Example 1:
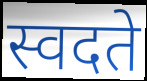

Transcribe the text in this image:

स्वदते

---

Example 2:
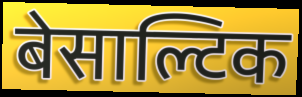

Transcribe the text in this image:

बेसाल्टिक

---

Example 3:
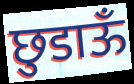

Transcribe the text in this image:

छुडाऊँ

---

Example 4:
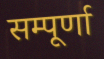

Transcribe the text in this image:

सम्पूर्णा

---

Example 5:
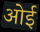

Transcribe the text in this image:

ओई